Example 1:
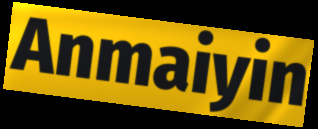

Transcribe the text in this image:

Anmaiyin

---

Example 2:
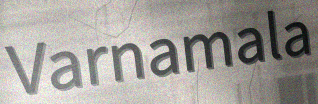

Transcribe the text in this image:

Varnamala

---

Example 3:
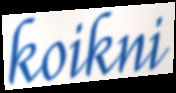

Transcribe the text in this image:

koikni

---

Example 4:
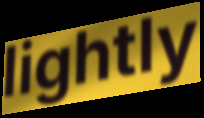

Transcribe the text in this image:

lightly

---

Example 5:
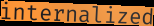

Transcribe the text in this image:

internalized